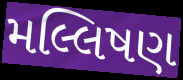
મલ્લિષણ